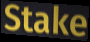
Stake